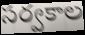
సర్వకాల